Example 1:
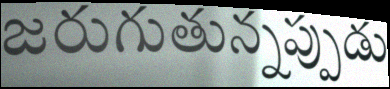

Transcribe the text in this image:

జరుగుతున్నప్పుడు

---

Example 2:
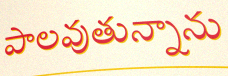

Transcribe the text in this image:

పాలవుతున్నాను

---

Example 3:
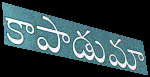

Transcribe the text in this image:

కాపాడుమా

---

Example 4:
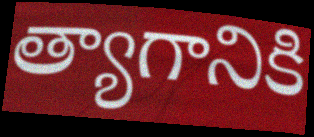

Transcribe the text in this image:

త్యాగానికి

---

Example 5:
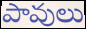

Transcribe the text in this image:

పావులు